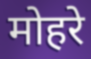
मोहरे